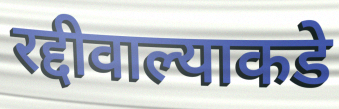
रद्दीवाल्याकडे